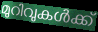
മുറിവുകൾക്ക്